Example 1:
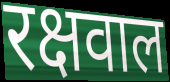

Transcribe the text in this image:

रक्षवाल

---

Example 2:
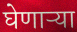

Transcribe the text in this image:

घेणाऱ्या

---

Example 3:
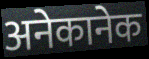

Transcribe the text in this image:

अनेकानेक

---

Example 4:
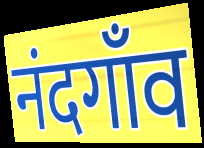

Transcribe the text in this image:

नंदगाँव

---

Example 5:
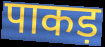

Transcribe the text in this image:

पाकड़